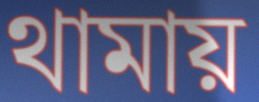
থামায়